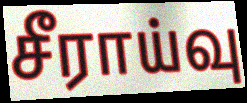
சீராய்வு